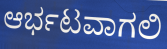
ಆರ್ಭಟವಾಗಲಿ